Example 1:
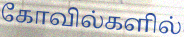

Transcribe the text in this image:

கோவில்களில்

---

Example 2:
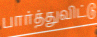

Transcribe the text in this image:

பார்த்துவிட்டு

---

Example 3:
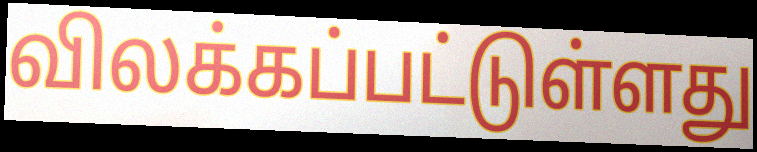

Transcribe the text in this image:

விலக்கப்பட்டுள்ளது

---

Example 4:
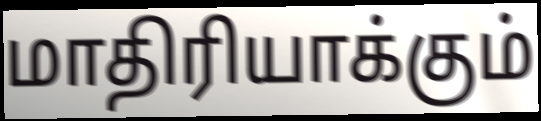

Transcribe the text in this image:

மாதிரியாக்கும்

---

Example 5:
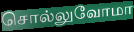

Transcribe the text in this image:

சொல்லுவோமா